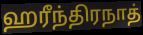
ஹரீந்திரநாத்